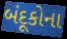
બંદૂકોના